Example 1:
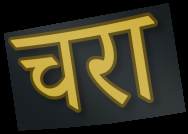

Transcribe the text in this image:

चरा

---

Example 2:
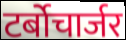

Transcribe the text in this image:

टर्बोचार्जर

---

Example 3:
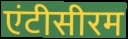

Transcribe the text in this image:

एंटीसीरम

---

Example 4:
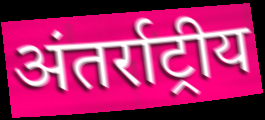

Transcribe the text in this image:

अंतर्राट्रीय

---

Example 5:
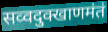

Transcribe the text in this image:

सव्वदुक्खाणमंतं